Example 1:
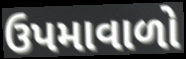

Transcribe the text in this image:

ઉપમાવાળો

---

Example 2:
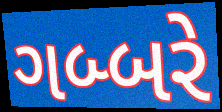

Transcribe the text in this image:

ગબ્બરે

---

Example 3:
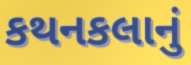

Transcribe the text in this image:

કથનકલાનું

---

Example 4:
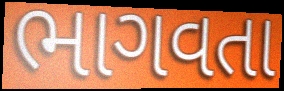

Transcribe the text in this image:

ભાગવતા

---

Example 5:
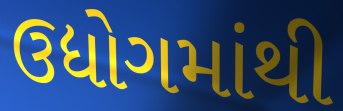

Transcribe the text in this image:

ઉદ્યોગમાંથી